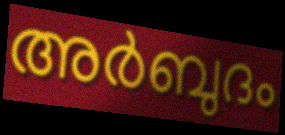
അർബുദം